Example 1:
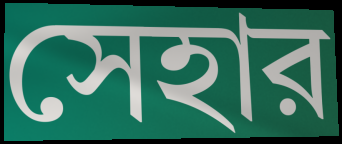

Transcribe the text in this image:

সেহার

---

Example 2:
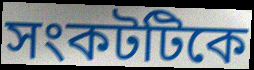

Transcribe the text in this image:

সংকটটিকে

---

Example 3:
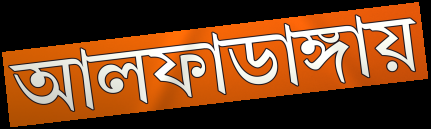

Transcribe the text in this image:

আলফাডাঙ্গায়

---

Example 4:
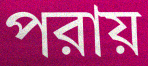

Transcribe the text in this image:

পরায়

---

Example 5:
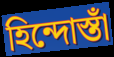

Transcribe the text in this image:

হিন্দোস্তাঁ